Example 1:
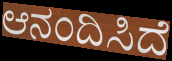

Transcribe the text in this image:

ಆನಂದಿಸಿದೆ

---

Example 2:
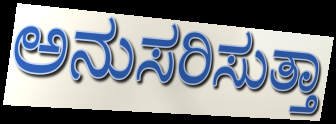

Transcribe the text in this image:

ಅನುಸರಿಸುತ್ತಾ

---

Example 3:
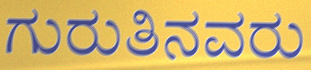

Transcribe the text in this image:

ಗುರುತಿನವರು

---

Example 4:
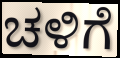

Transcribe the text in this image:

ಚಳಿಗೆ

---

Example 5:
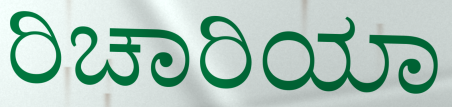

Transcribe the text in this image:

ರಿಚಾರಿಯಾ